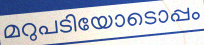
മറുപടിയോടൊപ്പം